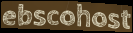
ebscohost